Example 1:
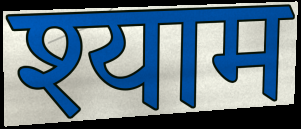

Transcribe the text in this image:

श्‍याम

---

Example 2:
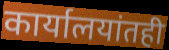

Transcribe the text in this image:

कार्यालयांतही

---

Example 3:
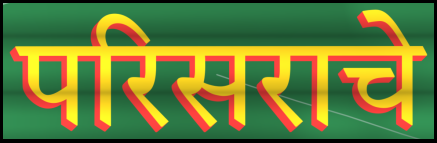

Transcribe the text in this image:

परिसराचे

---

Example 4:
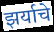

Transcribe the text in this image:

झर्याचे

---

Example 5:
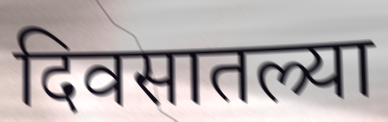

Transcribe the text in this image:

दिवसातल्या